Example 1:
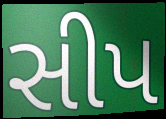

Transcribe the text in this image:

સીપ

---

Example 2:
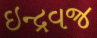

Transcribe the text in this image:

ઇન્દ્રવજ્ર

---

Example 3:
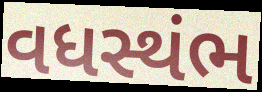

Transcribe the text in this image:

વધસ્થંભ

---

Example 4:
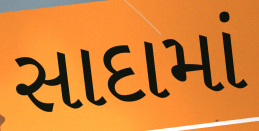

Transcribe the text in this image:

સાદામાં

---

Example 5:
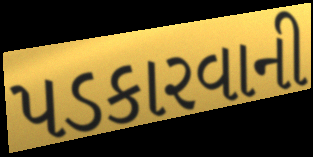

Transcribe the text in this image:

પડકારવાની